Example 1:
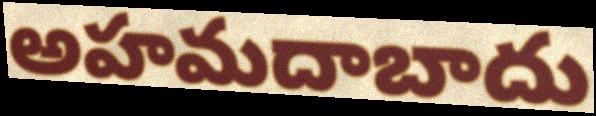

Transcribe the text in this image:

అహమదాబాదు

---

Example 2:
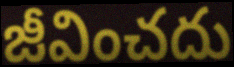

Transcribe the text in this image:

జీవించదు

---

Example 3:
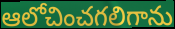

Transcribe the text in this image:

ఆలోచించగలిగాను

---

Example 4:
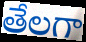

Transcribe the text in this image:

తేలగా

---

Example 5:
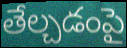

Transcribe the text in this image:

తేల్చడంపై